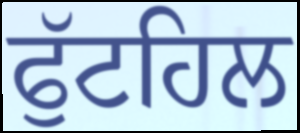
ਫੁੱਟਹਿਲ